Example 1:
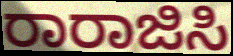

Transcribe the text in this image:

ರಾರಾಜಿಸಿ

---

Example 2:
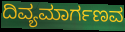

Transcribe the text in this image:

ದಿವ್ಯಮಾರ್ಗಣವ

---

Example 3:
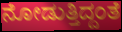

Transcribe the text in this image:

ನೋಡುತ್ತಿದ್ದಂತೆ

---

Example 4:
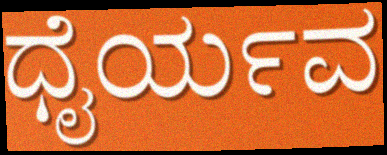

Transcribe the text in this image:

ಧೈರ್ಯವ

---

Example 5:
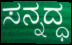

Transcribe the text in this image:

ಸನ್ನದ್ಧ